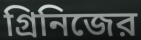
গ্রিনিজের